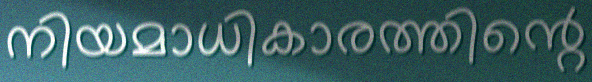
നിയമാധികാരത്തിന്റെ